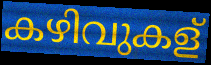
കഴിവുകള്